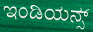
ಇಂಡಿಯನ್ಸ್